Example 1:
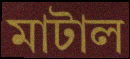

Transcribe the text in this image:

মাটাল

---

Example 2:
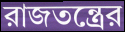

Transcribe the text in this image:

রাজতন্ত্রের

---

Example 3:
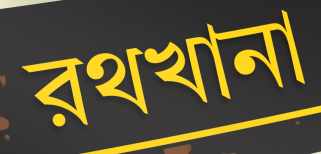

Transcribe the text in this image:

রথখানা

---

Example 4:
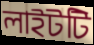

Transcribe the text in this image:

লাইটটি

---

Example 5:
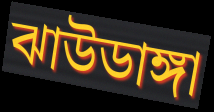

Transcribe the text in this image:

ঝাউডাঙ্গা